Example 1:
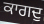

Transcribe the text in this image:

ਕਾਗਦੁ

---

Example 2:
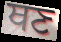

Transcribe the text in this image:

ਥਣ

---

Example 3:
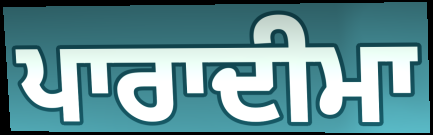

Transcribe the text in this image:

ਪਾਰਾਦੀਮਾ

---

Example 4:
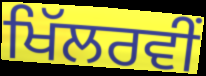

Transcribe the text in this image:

ਖਿੱਲਰਵੀਂ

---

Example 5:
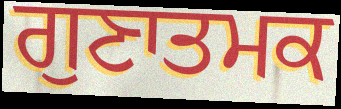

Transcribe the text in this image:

ਗੁਣਾਤਮਕ